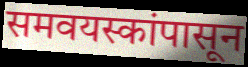
समवयस्कांपासून